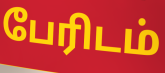
பேரிடம்